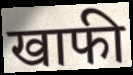
खाफी